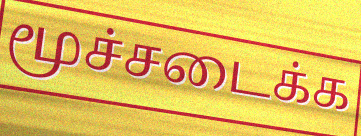
மூச்சடைக்க